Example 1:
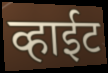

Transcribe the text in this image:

व्हाईट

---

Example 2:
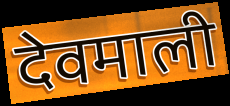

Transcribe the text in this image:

देवमाली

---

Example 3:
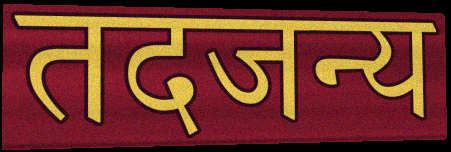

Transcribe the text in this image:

तदजन्य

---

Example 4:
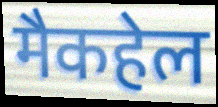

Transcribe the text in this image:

मैकहेल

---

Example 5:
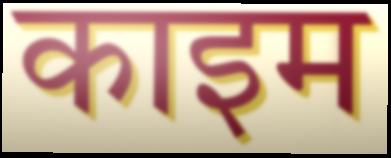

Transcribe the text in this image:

काइम